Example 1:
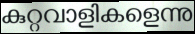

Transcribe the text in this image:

കുറ്റവാളികളെന്നു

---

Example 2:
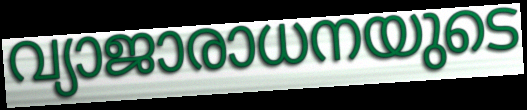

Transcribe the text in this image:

വ്യാജാരാധനയുടെ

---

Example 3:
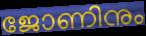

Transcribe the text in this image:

ജോണിനും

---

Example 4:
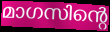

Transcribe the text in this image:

മാഗസിന്റെ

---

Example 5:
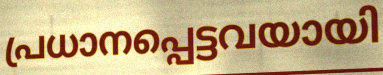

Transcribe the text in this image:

പ്രധാനപ്പെട്ടവയായി